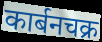
कार्बनचक्र